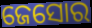
ଜେସୋର